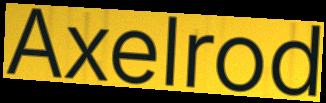
Axelrod